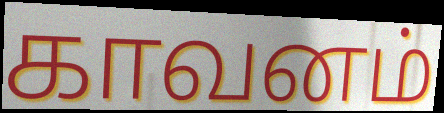
காவனம்